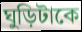
ঘুড়িটাকে